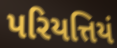
પરિયત્તિયં